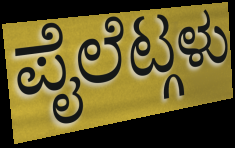
ಪೈಲೆಟ್ಗಳು